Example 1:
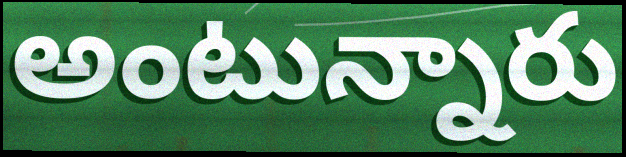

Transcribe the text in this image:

అంటున్నారు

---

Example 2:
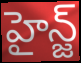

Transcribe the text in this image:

హైన్జ్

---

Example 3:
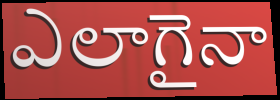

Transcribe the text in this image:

ఎలాగైనా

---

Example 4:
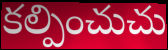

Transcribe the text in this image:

కల్పించుచు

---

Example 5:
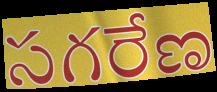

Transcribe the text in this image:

సగరేణ